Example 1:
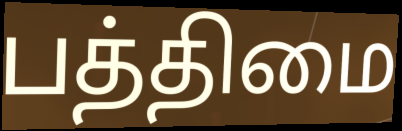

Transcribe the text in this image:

பத்திமை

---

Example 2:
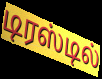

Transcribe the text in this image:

டிரஸ்டில்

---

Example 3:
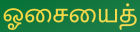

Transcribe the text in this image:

ஓசையைத்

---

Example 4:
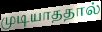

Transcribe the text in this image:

முடியாததால்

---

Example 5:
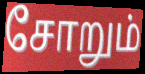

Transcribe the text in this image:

சோறும்